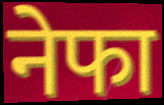
नेफा